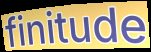
finitude